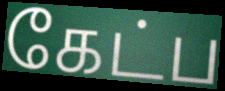
கேட்ப